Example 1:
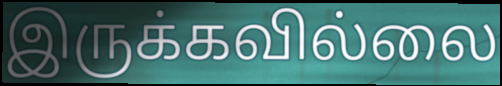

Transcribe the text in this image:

இருக்கவில்லை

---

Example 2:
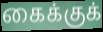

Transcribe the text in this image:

கைக்குக்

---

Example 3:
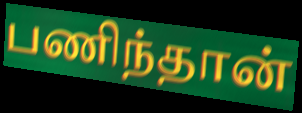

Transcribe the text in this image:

பணிந்தான்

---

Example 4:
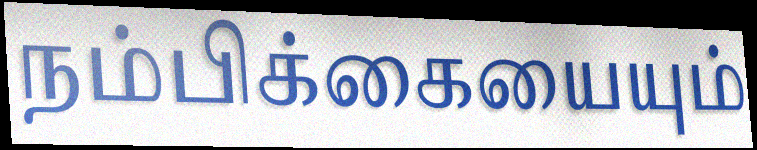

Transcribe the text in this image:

நம்பிக்கையையும்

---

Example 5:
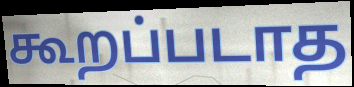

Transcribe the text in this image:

கூறப்படாத